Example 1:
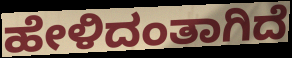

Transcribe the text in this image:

ಹೇಳಿದಂತಾಗಿದೆ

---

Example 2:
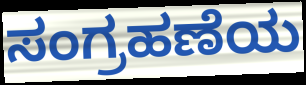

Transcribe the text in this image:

ಸಂಗ್ರಹಣೆಯ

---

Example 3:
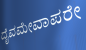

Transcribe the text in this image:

ದೈವಮೇವಾಪರೇ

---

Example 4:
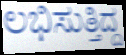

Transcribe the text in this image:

ಲಭಿಸುತ್ತಿದ್ದ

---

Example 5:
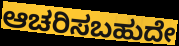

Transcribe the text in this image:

ಆಚರಿಸಬಹುದೇ